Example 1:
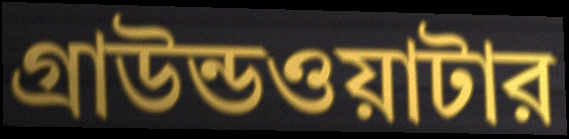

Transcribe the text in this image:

গ্রাউন্ডওয়াটার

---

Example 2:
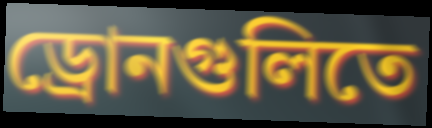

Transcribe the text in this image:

ড্রোনগুলিতে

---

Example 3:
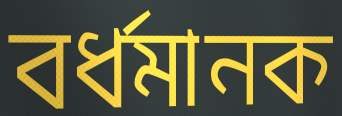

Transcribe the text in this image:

বর্ধমানক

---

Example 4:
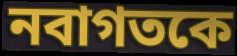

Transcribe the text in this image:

নবাগতকে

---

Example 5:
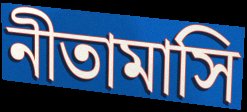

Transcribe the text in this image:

নীতামাসি